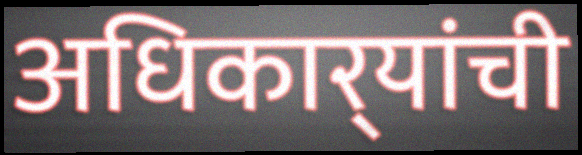
अधिकार्‍यांची